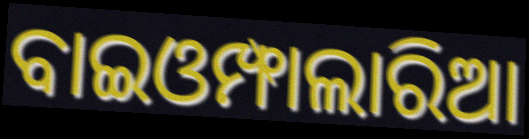
ବାଇଓମ୍ଫାଲାରିଆ